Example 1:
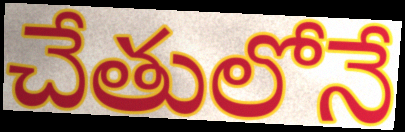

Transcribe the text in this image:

చేతులోనే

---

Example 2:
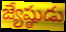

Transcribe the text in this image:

జ్యేష్ఠుడు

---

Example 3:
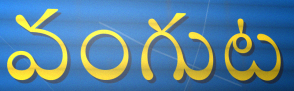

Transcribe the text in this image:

వంగుట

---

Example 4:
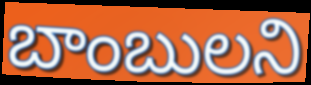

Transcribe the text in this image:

బాంబులని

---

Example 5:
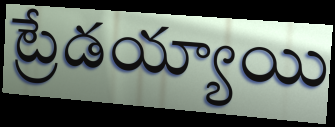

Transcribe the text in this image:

ట్రేడయ్యాయి